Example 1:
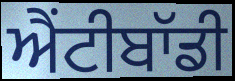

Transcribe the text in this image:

ਐਂਟੀਬਾੱਡੀ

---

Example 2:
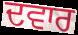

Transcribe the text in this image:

ਦਵਾਰ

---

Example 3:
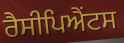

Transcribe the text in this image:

ਰੈਸੀਪਿਐਂਟਸ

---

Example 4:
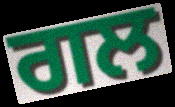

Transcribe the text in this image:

ਗਲ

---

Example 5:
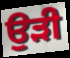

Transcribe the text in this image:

ਉਡ਼ੀ